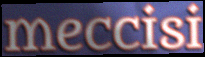
meccisi